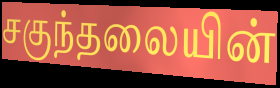
சகுந்தலையின்